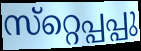
സ്‌റ്റെപ്പപ്പു